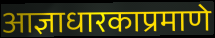
आज्ञाधारकाप्रमाणे